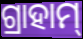
ଗ୍ରାହାମ୍